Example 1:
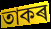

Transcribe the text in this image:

তাকৰ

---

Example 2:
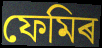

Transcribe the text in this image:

ফেমিৰ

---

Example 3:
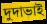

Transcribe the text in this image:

দুদাভাই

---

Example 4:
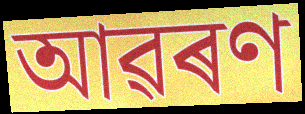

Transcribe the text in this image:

আৱৰণ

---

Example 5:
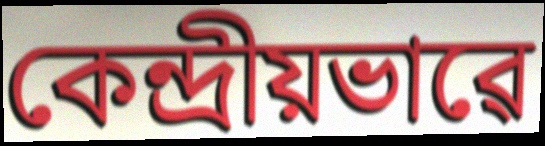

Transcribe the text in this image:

কেন্দ্ৰীয়ভাৱে